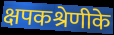
क्षपकश्रेणीके